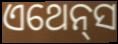
ଏଥେନ୍‌ସ